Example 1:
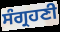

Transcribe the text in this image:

ਸੰਗ੍ਰਹਣੀ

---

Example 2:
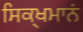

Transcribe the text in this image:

ਸਿਕ੍ਖਮਾਨਂ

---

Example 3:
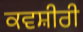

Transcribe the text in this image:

ਕਵਸ਼ੀਰੀ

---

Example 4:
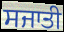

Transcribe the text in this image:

ਸਜਾਤੀ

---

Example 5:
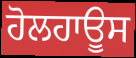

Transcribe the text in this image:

ਹੋਲਹਾਊਸ